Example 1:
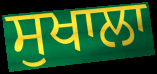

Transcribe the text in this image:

ਸੁਖਾਲਾ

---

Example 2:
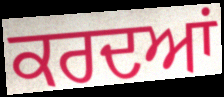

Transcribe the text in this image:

ਕਰਦਆਂ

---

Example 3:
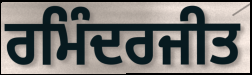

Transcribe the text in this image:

ਰਮਿੰਦਰਜੀਤ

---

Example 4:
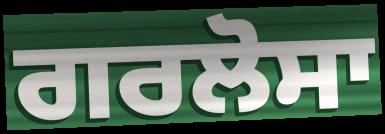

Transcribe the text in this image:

ਗਰਲੋਸਾ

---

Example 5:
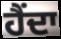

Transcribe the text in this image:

ਹੈਂਦਾ